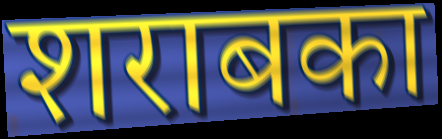
शराबका